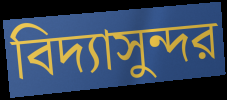
বিদ্যাসুন্দর